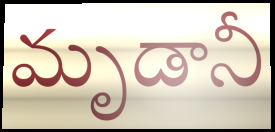
మృడానీ